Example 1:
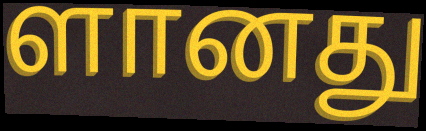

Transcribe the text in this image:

ளானது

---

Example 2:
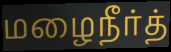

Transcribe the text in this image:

மழைநீர்த்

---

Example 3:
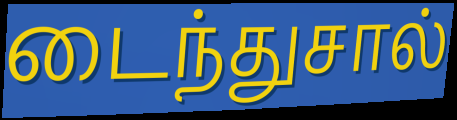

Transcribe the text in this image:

டைந்துசால்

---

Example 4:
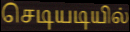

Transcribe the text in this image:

செடியடியில்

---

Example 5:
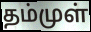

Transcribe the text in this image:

தம்முள்